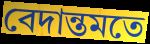
বেদান্তমতে